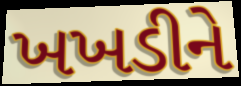
ખખડીને